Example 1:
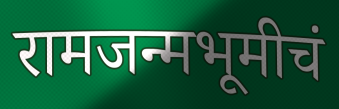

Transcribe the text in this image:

रामजन्मभूमीचं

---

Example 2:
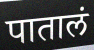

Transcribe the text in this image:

पातालं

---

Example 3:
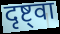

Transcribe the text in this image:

दृष्ट्‍वा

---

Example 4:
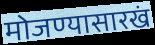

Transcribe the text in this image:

मोजण्यासारखं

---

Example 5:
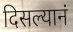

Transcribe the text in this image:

दिसल्यानं